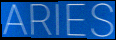
ARIES